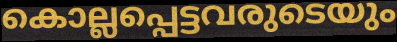
കൊല്ലപ്പെട്ടവരുടെയും